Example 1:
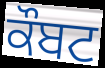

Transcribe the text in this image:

ਕੌਬਟ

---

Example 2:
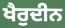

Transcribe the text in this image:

ਖੈਰੁਦੀਨ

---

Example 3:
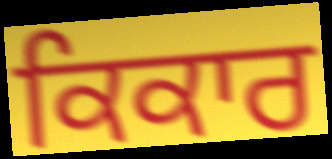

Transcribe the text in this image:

ਕਿਕਾਰ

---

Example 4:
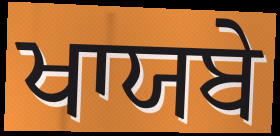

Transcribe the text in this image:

ਖਾਯਬੇ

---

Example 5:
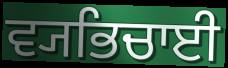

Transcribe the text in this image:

ਵ੍ਯਭਿਚਾਈ